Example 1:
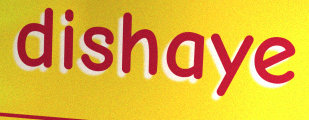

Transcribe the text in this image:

dishaye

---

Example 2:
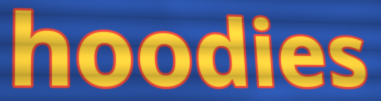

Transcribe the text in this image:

hoodies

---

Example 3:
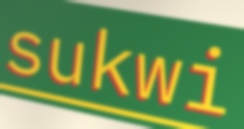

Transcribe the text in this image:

sukwi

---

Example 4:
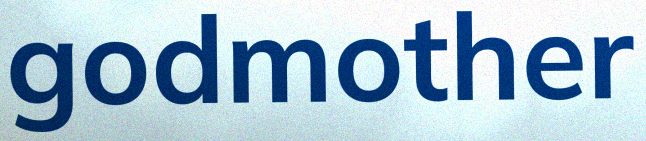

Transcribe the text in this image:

godmother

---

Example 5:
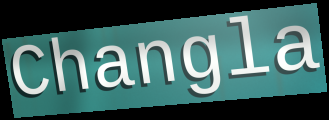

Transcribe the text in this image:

Changla